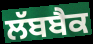
ਲੱਬਬੈਕ